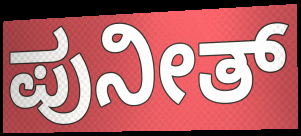
ಪುನೀತ್